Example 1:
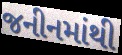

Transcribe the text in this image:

જનીનમાંથી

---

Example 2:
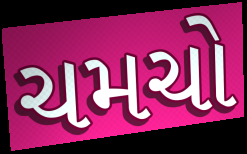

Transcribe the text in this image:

ચમચો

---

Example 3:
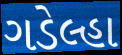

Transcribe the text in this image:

ગડેલ્હા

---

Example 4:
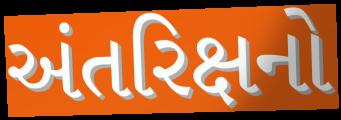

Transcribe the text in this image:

અંતરિક્ષનો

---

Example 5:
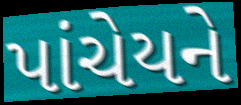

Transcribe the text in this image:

પાંચેયને